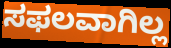
ಸಫಲವಾಗಿಲ್ಲ